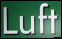
Luft